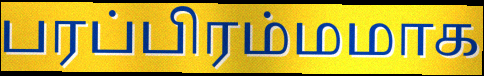
பரப்பிரம்மமாக